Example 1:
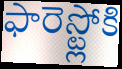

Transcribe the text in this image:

ఫారెస్ట్లోకి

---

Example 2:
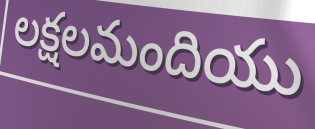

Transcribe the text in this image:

లక్షలమందియు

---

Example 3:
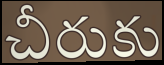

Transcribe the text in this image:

చీరుకు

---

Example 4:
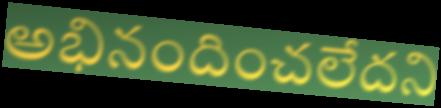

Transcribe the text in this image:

అభినందించలేదని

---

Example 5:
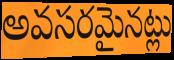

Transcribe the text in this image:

అవసరమైనట్లు